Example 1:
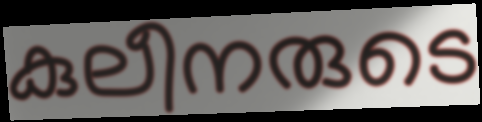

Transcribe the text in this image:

കുലീനരുടെ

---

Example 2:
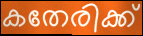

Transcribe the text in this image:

കതേരിക്ക്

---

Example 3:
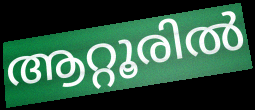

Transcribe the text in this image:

ആറ്റൂരിൽ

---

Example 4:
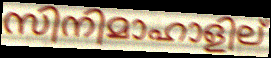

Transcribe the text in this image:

സിനിമാഹാളില്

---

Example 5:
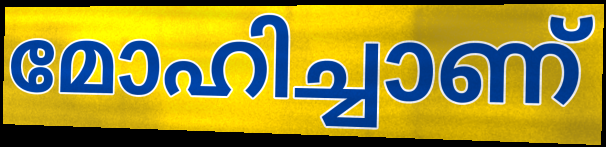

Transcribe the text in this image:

മോഹിച്ചാണ്